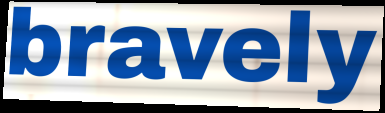
bravely